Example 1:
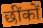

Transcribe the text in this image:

छींकों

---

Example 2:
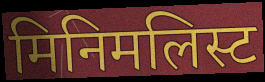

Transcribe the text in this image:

मिनिमलिस्ट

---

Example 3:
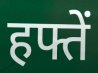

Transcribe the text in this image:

हफ्तें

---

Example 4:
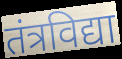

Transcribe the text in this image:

तंत्रविद्या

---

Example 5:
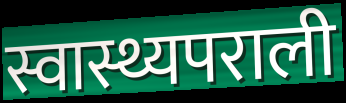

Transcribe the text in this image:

स्वास्थ्यपराली